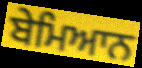
ਬੇਮਿਆਨ